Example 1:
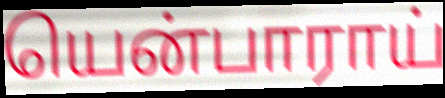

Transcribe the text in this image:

யென்பாராய்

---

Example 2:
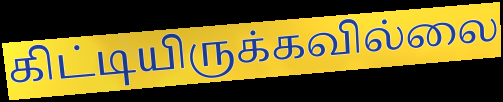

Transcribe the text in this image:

கிட்டியிருக்கவில்லை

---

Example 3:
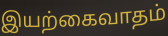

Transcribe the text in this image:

இயற்கைவாதம்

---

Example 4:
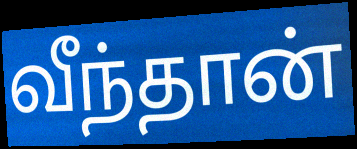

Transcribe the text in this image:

வீந்தான்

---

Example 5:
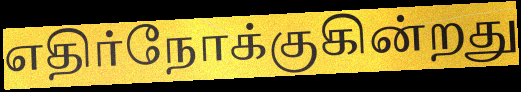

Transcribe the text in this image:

எதிர்நோக்குகின்றது